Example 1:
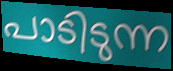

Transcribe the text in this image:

പാടിടുന്ന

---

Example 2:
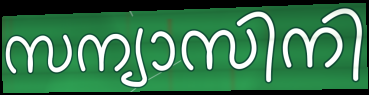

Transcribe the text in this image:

സന്യാസിനി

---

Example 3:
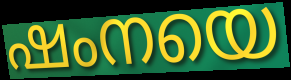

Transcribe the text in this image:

ഷംനയെ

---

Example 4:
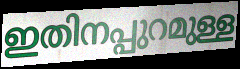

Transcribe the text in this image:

ഇതിനപ്പുറമുള്ള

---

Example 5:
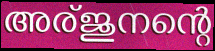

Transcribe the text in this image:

അര്ജുനന്റെ